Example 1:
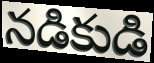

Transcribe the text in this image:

నడికుడి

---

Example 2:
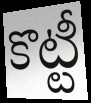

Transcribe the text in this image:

కొట్టీ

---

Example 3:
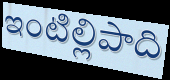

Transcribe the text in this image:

ఇంటిల్లిపాది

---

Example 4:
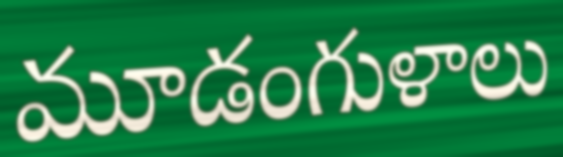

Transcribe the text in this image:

మూడంగుళాలు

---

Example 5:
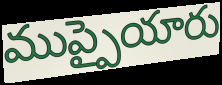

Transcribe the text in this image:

ముప్పైయారు